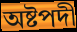
অষ্টপদী